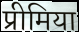
प्रीमिया